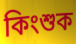
কিংশুক